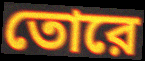
তোরে